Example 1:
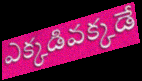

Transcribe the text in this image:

ఎక్కడివక్కడే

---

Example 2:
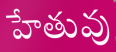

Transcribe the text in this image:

హేతువు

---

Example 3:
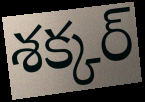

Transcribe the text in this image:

శక్కర్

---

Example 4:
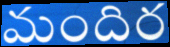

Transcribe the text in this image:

మందిర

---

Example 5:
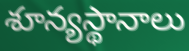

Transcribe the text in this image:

శూన్యస్థానాలు